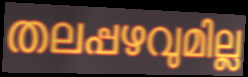
തലപ്പഴവുമില്ല